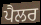
ਪੈਲਰ